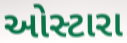
ઓસ્ટારા